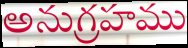
అనుగ్రహము